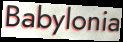
Babylonia